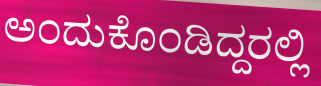
ಅಂದುಕೊಂಡಿದ್ದರಲ್ಲಿ